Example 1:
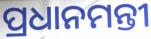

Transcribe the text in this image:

ପ୍ରଧାନମନ୍ତୀ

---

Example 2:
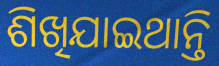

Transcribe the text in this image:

ଶିଖିଯାଇଥାନ୍ତି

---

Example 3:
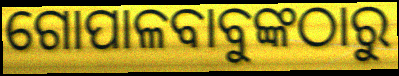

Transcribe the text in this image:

ଗୋପାଳବାବୁଙ୍କଠାରୁ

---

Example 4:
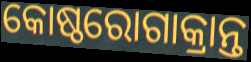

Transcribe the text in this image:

କୋଷ୍ଠରୋଗାକ୍ରାନ୍ତ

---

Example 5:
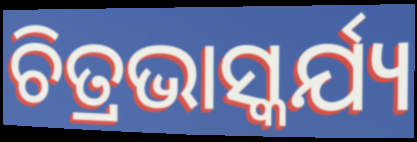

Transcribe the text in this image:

ଚିତ୍ରଭାସ୍କର୍ଯ୍ୟ